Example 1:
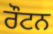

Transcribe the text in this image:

ਰੌਟਨ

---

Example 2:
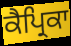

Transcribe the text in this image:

ਕੈਪ੍ਰਿਕਾ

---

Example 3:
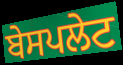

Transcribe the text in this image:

ਬੇਸਪਲੇਟ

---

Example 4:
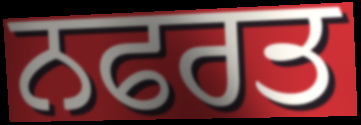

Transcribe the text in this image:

ਨਫਰਤ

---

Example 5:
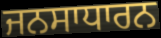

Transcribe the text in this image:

ਜਨਸਾਧਾਰਨ